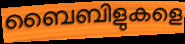
ബൈബിളുകളെ